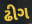
ઢીગ